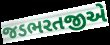
જડભરતજીએ